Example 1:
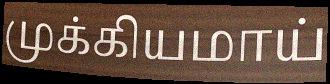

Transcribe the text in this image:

முக்கியமாய்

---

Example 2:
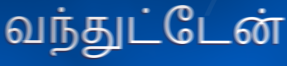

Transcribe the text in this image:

வந்துட்டேன்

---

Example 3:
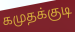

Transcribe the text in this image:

கமுதக்குடி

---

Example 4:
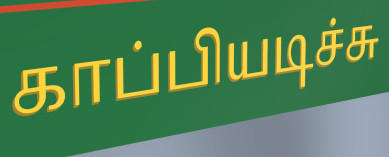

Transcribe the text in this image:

காப்பியடிச்சு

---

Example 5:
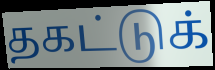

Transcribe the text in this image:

தகட்டுக்